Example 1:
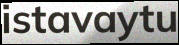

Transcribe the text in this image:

istavaytu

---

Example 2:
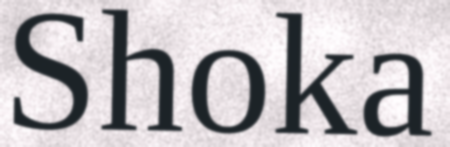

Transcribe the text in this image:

Shoka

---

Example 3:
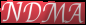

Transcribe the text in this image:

NDMA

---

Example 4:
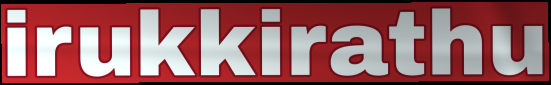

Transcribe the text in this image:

irukkirathu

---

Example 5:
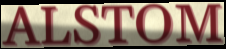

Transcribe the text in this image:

ALSTOM